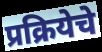
प्रक्रियेचे